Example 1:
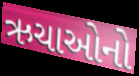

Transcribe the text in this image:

ઋચાઓનો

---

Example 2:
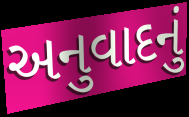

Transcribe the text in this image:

અનુવાદનું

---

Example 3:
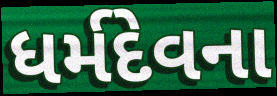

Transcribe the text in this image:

ધર્મદેવના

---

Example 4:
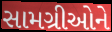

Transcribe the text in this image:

સામગ્રીઓને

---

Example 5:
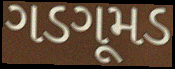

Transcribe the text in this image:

ગડગૂમડ